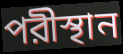
পরীস্থান